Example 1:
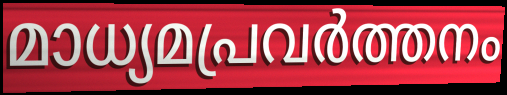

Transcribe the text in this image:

മാധ്യമപ്രവർത്തനം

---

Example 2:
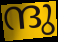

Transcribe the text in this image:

ന്ദു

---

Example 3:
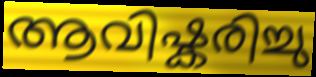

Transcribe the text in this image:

ആവിഷ്കരിച്ചു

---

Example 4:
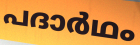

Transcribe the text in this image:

പദാർഥം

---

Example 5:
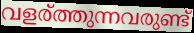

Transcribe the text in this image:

വളര്ത്തുന്നവരുണ്ട്